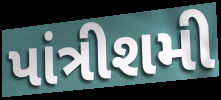
પાંત્રીશમી